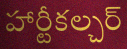
హార్టీకల్చర్